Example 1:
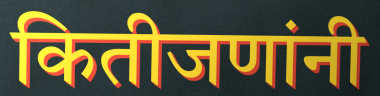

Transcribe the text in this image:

कितीजणांनी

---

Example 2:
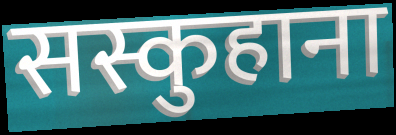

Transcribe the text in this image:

सस्कुहाना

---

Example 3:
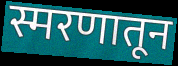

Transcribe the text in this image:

स्मरणातून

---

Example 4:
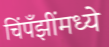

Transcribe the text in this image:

चिंपँझींमध्ये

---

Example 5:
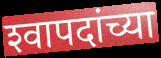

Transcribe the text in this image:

श्‍वापदांच्या